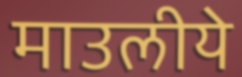
माउलीये